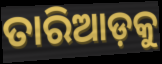
ତାରିଆଡ଼କୁ